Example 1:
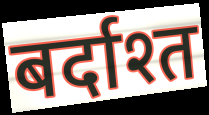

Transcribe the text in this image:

बर्दाश्त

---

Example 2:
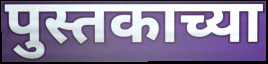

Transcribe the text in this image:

पुस्तकाच्या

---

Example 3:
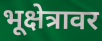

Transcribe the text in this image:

भूक्षेत्रावर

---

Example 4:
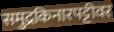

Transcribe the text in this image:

समुद्रकिनारपट्टीवर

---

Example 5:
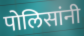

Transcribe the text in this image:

पोलिसांनी